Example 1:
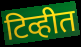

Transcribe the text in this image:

टिव्हीत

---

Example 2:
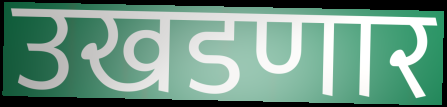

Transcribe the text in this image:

उखडणार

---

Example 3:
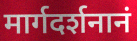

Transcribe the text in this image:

मार्गदर्शनानं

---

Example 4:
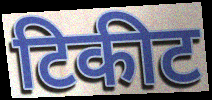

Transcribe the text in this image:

टिकीट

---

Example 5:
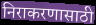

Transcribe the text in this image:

निराकरणासाठी